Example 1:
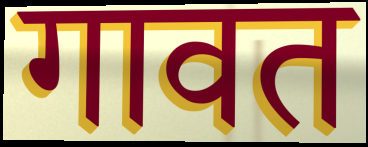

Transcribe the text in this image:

गावत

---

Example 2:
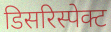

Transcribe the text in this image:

डिसरिस्पेक्ट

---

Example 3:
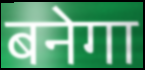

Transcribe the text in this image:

बनेगा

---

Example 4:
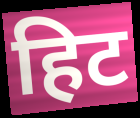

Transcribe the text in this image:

हिट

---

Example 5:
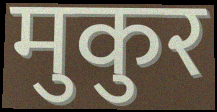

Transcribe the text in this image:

मुकुर